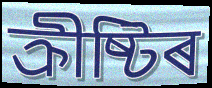
ক্ৰীষ্টিৰ